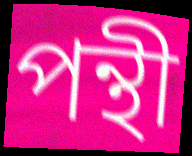
পন্থী